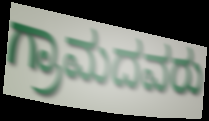
ಗ್ರಾಮದವರು